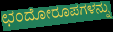
ಛಂದೋರೂಪಗಳನ್ನು